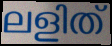
ലളിത്